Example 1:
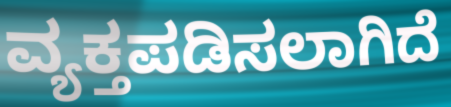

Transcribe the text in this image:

ವ್ಯಕ್ತಪಡಿಸಲಾಗಿದೆ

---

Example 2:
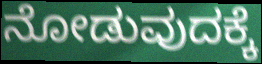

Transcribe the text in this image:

ನೋಡುವುದಕ್ಕೆ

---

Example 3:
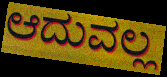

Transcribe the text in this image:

ಆದುವಲ್ಲ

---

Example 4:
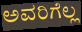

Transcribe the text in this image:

ಅವರಿಗೆಲ್ಲ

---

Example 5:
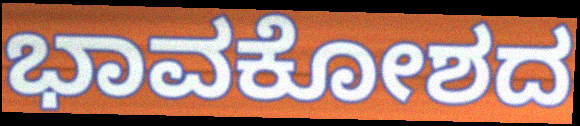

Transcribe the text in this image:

ಭಾವಕೋಶದ